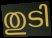
തുടി